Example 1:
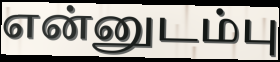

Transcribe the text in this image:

என்னுடம்பு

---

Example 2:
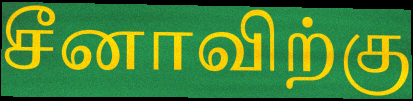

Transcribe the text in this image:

சீனாவிற்கு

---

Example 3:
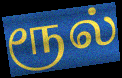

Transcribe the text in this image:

ரூல்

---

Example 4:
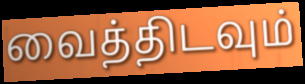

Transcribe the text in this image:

வைத்திடவும்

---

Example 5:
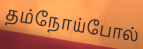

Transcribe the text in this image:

தம்நோய்போல்